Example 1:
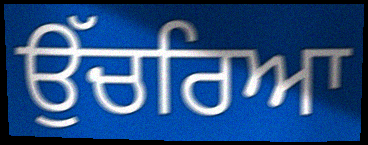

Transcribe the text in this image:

ਉੱਚਰਿਆ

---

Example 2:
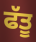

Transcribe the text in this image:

ਫੱਤੂ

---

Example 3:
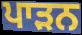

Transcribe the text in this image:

ਪਾੜਨ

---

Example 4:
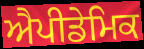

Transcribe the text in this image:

ਐਪੀਡੇਮਿਕ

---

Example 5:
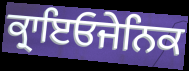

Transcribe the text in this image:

ਕ੍ਰਾਇਓਜੇਨਿਕ